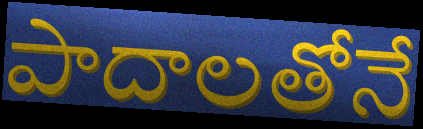
పాదాలతోనే